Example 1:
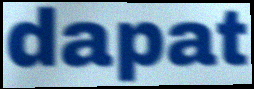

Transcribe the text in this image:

dapat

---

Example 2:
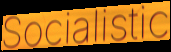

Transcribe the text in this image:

Socialistic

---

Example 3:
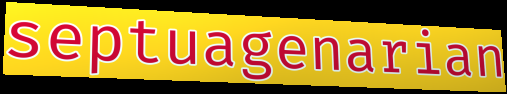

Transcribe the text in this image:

septuagenarian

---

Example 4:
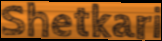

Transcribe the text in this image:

Shetkari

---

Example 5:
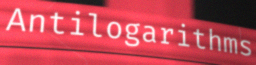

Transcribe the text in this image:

Antilogarithms